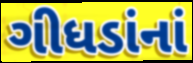
ગીધડાંનાં